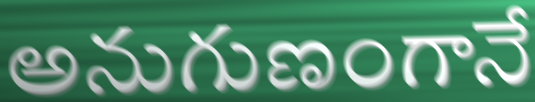
అనుగుణంగానే